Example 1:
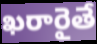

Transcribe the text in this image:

ఖరారైతే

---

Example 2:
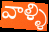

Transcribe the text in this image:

వాళ్ళి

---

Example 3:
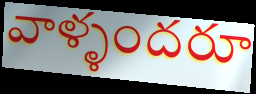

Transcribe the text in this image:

వాళ్ళందరూ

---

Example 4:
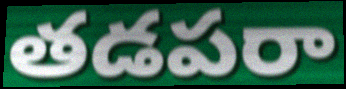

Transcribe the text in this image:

తడపరా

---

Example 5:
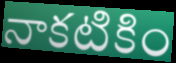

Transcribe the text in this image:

నాకటికిం